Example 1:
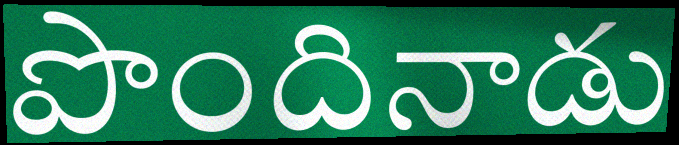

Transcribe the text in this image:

పొందినాడు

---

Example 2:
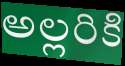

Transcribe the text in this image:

అల్లరికి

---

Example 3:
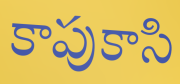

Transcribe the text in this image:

కాపుకాసి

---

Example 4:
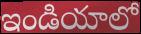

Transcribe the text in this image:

ఇండియాలో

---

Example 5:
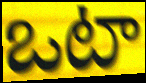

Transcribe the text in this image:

ఒటా